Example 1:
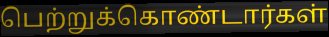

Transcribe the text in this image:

பெற்றுக்கொண்டார்கள்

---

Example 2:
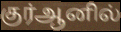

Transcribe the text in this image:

குர்ஆனில்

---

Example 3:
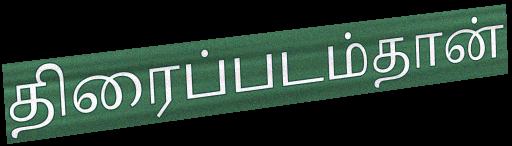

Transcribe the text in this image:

திரைப்படம்தான்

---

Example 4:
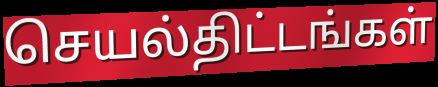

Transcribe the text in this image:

செயல்திட்டங்கள்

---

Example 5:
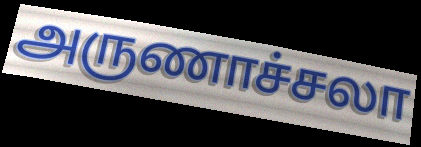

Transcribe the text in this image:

அருணாச்சலா